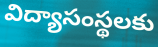
విద్యాసంస్థలకు